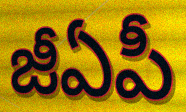
జీఏపీ